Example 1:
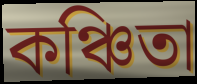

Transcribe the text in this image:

কঞ্চিতা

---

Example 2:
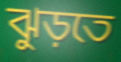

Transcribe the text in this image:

ঝুড়তে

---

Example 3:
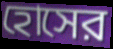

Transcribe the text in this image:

হোসের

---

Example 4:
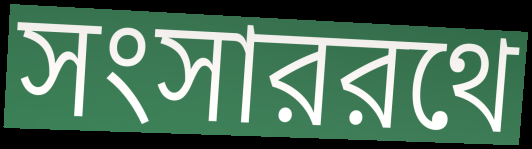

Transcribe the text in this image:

সংসাররথে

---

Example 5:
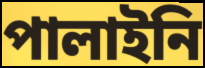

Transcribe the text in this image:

পালাইনি